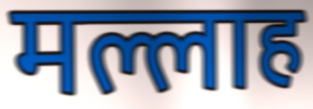
मल्‍लाह